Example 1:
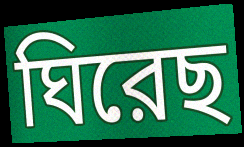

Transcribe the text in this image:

ঘিরেছ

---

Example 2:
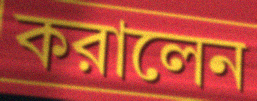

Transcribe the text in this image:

করালেন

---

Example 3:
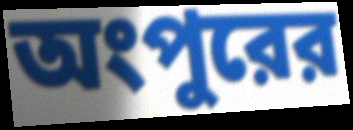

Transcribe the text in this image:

অংপুরের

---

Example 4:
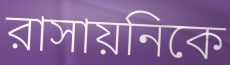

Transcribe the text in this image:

রাসায়নিকে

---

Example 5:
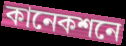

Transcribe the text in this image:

কানেকশনে